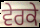
ਵੇਰਕੇ